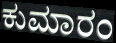
ಕುಮಾರಂ